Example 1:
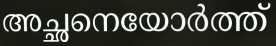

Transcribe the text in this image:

അച്ഛനെയോർത്ത്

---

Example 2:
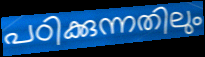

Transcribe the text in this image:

പഠിക്കുന്നതിലും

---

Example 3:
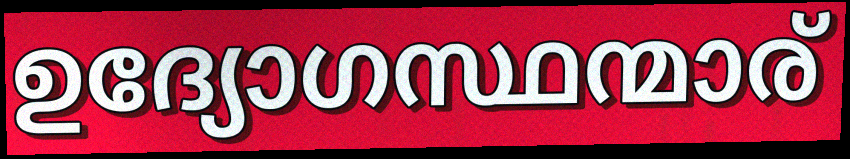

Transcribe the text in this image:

ഉദ്യോഗസ്ഥന്മാര്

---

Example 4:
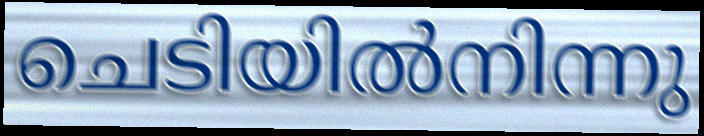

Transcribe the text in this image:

ചെടിയിൽനിന്നു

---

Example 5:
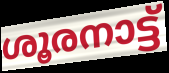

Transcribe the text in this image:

ശൂരനാട്ട്